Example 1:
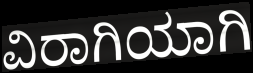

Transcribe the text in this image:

ವಿರಾಗಿಯಾಗಿ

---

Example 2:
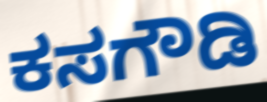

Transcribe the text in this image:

ಕಸಗೌಡಿ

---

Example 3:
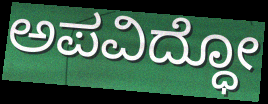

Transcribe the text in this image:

ಅಪವಿದ್ಧೋ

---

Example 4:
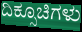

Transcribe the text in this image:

ದಿಕ್ಸೂಚಿಗಳು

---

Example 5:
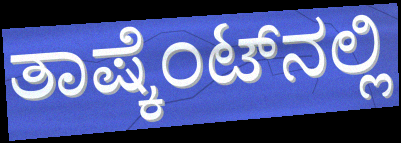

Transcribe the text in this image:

ತಾಷ್ಕೆಂಟ್‌ನಲ್ಲಿ